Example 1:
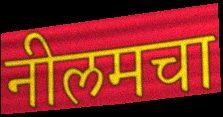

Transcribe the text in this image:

नीलमचा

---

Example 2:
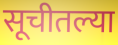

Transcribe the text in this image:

सूचीतल्या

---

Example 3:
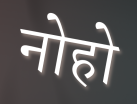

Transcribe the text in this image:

नोहो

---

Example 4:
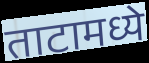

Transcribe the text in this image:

ताटामध्ये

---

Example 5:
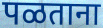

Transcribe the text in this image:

पळताना